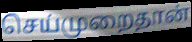
செய்முறைதான்